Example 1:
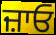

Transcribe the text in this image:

ਜ਼ਾਓ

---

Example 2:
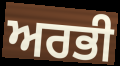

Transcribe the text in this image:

ਅਰਭੀ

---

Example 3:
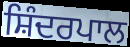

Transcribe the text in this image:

ਸ਼ਿੰਦਰਪਾਲ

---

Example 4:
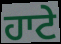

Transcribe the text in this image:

ਹਾਟੇ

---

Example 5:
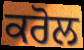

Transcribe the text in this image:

ਕਰੋਲ